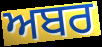
ਅਬਰ